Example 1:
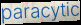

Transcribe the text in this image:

paracytic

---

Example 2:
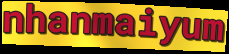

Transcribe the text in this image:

nhanmaiyum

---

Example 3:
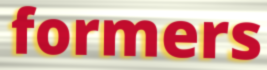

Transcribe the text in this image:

formers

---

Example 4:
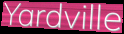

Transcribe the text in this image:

Yardville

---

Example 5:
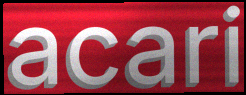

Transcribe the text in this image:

acari